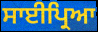
ਸਾਈਪ੍ਰਿਆ